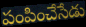
పంపించేసేడు